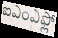
ఐఎంఎఫ్లో